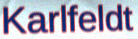
Karlfeldt